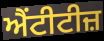
ਐਂਟੀਟੀਜ਼